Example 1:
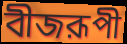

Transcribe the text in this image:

বীজরূপী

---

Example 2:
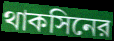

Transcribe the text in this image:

থাকসিনের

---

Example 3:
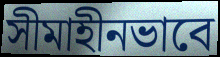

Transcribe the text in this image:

সীমাহীনভাবে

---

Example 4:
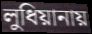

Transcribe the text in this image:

লুধিয়ানায়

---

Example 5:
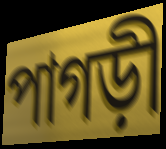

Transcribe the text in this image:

পাগড়ী